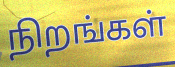
நிறங்கள்